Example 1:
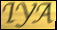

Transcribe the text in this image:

IYA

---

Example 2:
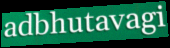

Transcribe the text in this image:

adbhutavagi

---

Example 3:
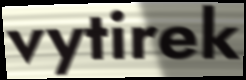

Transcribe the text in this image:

vytirek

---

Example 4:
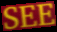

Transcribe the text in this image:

SEE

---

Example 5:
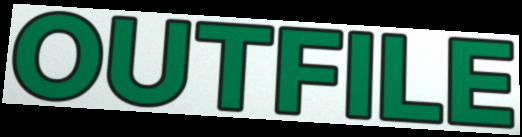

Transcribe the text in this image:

OUTFILE